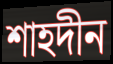
শাহদীন